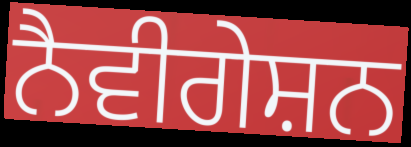
ਨੈਵੀਗੇਸ਼ਨ